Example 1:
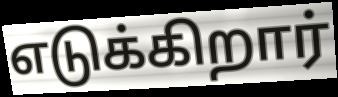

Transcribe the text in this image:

எடுக்கிறார்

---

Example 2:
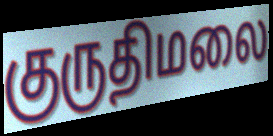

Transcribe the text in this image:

குருதிமலை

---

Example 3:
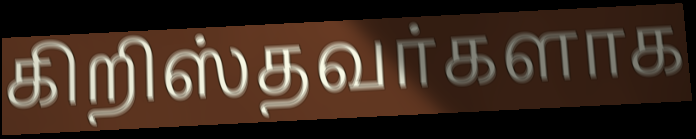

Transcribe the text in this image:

கிறிஸ்தவர்களாக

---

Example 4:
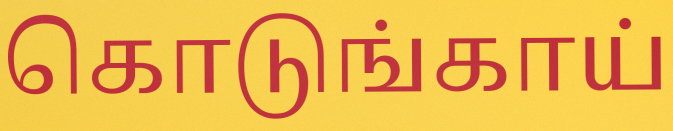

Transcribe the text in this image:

கொடுங்காய்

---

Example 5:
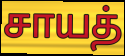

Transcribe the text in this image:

சாயத்